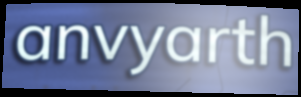
anvyarth